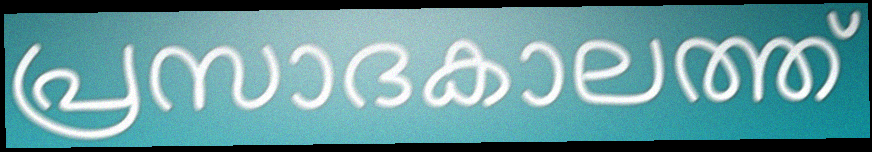
പ്രസാദകാലത്ത്